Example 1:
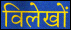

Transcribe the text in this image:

विलेखों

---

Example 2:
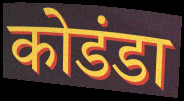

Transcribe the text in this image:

कोडंडा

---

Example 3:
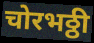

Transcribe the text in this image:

चोरभठ्ठी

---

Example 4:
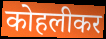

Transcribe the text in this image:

कोहलीकर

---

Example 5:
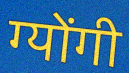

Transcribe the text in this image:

ग्योंगी